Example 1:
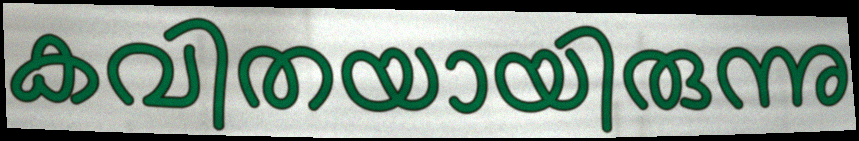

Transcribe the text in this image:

കവിതയായിരുന്നു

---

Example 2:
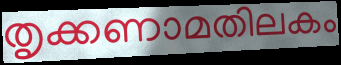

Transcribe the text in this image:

തൃക്കണാമതിലകം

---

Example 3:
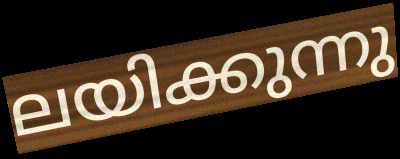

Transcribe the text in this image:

ലയിക്കുന്നു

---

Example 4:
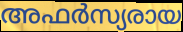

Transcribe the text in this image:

അഫർസ്യരായ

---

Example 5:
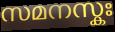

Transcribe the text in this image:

സമനസ്കഃ